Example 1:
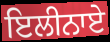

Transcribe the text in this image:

ਇਲੀਨਾਏ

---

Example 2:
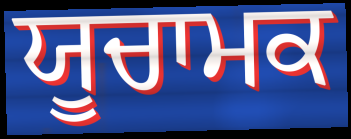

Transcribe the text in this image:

ਯੂਚਾਮਕ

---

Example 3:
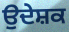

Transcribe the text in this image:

ਉਦੇਸ਼ਕ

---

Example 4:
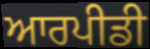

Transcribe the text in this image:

ਆਰਪੀਡੀ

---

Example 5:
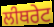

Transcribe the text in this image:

ਲੀਥਰੇਟ